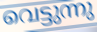
വെട്ടുന്നു